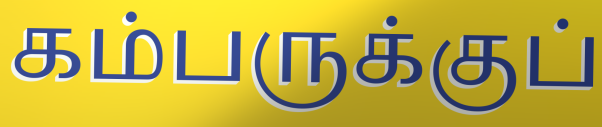
கம்பருக்குப்